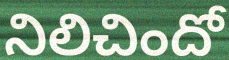
నిలిచిందో